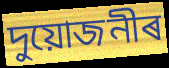
দুয়োজনীৰ